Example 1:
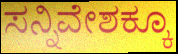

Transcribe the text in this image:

ಸನ್ನಿವೇಶಕ್ಕೂ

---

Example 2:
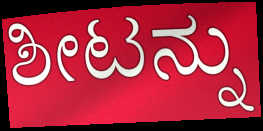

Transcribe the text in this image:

ಶೀಟನ್ನು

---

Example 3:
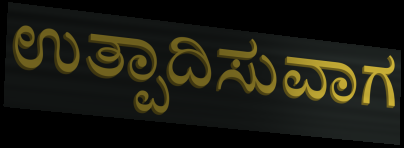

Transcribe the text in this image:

ಉತ್ಪಾದಿಸುವಾಗ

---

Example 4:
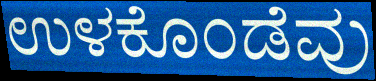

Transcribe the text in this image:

ಉಳಕೊಂಡೆವು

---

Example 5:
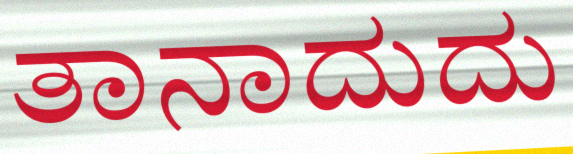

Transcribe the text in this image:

ತಾನಾದುದು